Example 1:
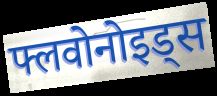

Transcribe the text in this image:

फ्लवोनोइड्स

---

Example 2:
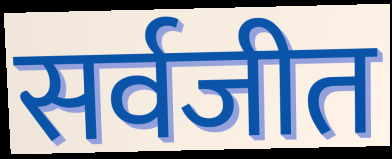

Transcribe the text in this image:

सर्वजीत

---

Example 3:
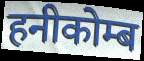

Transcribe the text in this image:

हनीकोम्ब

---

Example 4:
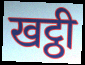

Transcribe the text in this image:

खट्ठी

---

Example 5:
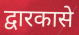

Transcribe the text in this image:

द्वारकासे